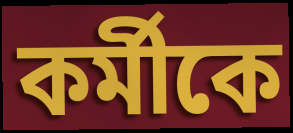
কর্মীকে